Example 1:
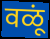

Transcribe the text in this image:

वळूं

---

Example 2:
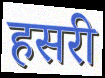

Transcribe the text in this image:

हसरी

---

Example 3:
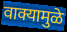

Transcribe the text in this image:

वाक्यामुळे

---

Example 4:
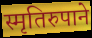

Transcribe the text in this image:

स्मृतिरुपाने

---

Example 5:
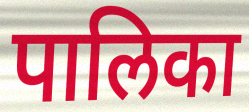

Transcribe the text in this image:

पालिका